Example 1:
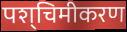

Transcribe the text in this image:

पश्चिमीकरण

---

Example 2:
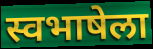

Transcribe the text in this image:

स्वभाषेला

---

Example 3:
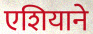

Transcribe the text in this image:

एशियाने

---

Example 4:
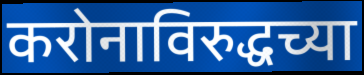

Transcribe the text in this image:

करोनाविरुद्धच्या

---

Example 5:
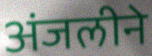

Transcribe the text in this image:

अंजलीने